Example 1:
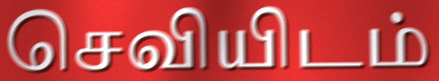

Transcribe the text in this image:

செவியிடம்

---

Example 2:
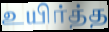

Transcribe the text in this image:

உயிர்த்த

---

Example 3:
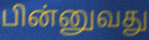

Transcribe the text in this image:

பின்னுவது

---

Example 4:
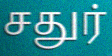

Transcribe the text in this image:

சதுர்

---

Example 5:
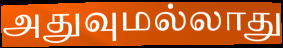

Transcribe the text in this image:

அதுவுமல்லாது